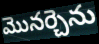
మొనర్చెను